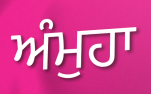
ਅੰਮੁਹਾ